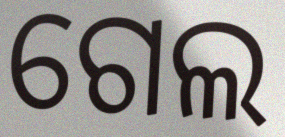
ଗେଲ